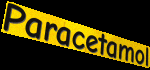
Paracetamol